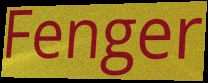
Fenger